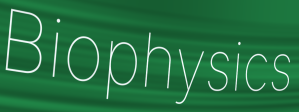
Biophysics